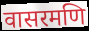
वासरमणि